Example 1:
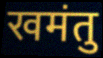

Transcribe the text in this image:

खमंतु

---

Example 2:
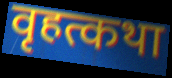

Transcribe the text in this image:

वृहत्कथा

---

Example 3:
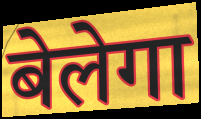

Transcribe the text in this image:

बेलेगा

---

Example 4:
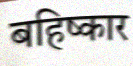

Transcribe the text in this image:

बहिष्कार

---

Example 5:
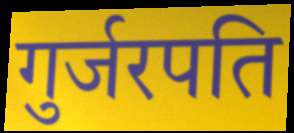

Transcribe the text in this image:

गुर्जरपति